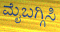
ಮೈಬಗ್ಗಿಸಿ